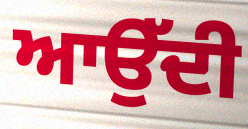
ਆਉੱਦੀ